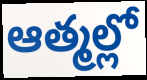
ఆత్మల్లో